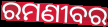
ରମଣୀବର